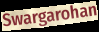
Swargarohan